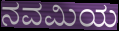
ನವಮಿಯ